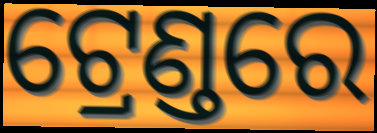
ଟ୍ରେଣ୍ଡରେ